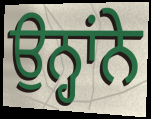
ਉਨ੍ਹਾਂਨੇ